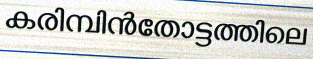
കരിമ്പിൻതോട്ടത്തിലെ